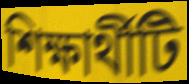
শিক্ষার্থীটি